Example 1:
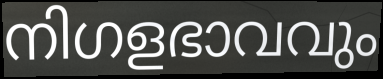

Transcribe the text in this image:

നിഗളഭാവവും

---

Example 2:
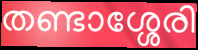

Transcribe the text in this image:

തണ്ടാശ്ശേരി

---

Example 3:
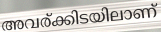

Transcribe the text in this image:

അവര്ക്കിടയിലാണ്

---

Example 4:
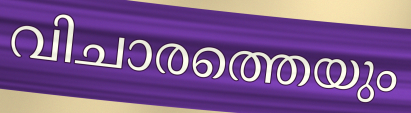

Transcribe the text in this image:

വിചാരത്തെയും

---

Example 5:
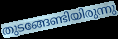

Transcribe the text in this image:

തുടങ്ങേണ്ടിയിരുന്നു